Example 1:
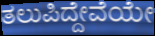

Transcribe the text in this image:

ತಲುಪಿದ್ದೇವೆಯೇ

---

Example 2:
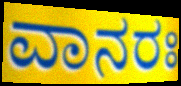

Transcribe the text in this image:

ವಾನರಃ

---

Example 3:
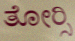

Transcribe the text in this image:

ತೋರ್‍ಸಿ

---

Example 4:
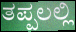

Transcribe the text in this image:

ತಪ್ಪಲಲ್ಲಿ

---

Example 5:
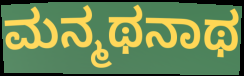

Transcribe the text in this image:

ಮನ್ಮಥನಾಥ